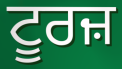
ਟੂਰਜ਼